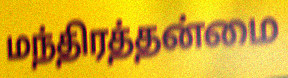
மந்திரத்தன்மை